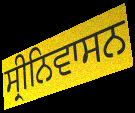
ਸ੍ਰੀਨਿਵਾਸਨ